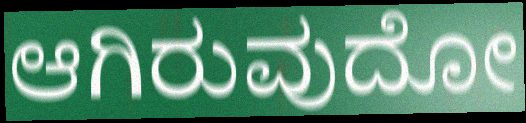
ಆಗಿರುವುದೋ